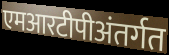
एमआरटीपीअंतर्गत